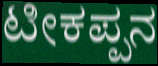
ಟೀಕಪ್ಪನ